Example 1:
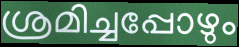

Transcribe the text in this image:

ശ്രമിച്ചപ്പോഴും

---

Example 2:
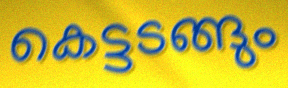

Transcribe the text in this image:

കെട്ടടങ്ങും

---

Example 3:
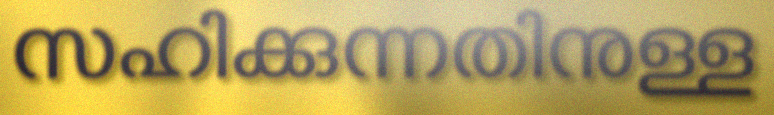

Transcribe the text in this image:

സഹിക്കുന്നതിനുള്ള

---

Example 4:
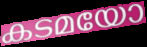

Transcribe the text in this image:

കടമയോ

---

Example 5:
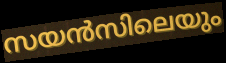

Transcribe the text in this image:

സയൻസിലെയും